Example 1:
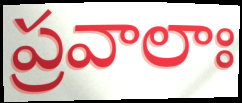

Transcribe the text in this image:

ప్రవాలాః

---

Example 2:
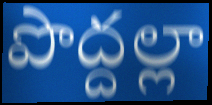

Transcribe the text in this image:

పొద్దల్లా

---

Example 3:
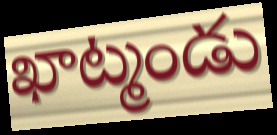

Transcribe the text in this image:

ఖాట్మండు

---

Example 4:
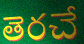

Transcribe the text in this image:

తెరచే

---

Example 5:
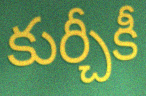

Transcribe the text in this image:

కుర్చీకీ